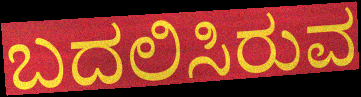
ಬದಲಿಸಿರುವ